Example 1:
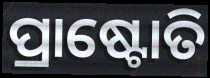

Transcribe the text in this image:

ପ୍ରାଷ୍ଟୋତି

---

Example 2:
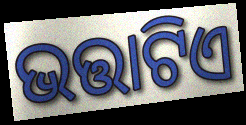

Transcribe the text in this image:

ଭତ୍ତାଟିଏ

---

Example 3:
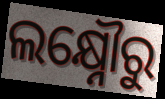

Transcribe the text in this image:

ଲକ୍ଷ୍ନୌରୁ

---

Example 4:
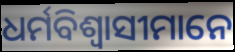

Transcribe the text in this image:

ଧର୍ମବିଶ୍ଵାସୀମାନେ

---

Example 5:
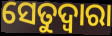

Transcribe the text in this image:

ସେତୁଦ୍ୱାରା